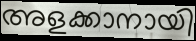
അളക്കാനായി